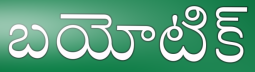
బయోటిక్